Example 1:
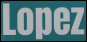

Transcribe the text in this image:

Lopez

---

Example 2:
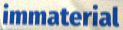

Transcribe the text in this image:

immaterial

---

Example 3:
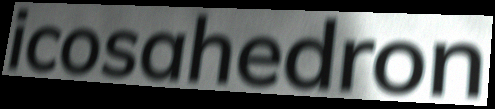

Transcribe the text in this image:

icosahedron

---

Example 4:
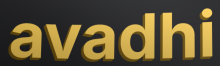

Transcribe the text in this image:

avadhi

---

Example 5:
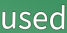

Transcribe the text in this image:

used